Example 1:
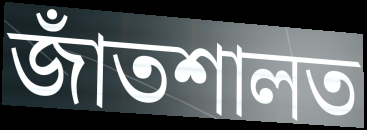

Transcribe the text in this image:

জাঁতশালত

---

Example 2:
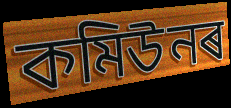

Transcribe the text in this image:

কমিউনৰ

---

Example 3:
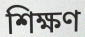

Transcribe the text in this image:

শিক্ষণ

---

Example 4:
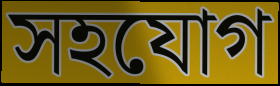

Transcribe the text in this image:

সহযোগ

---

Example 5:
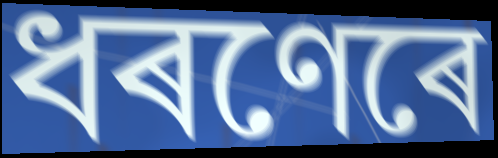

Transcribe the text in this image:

ধৰণেৰে